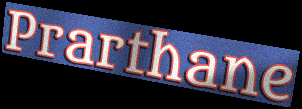
Prarthane